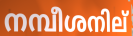
നമ്പീശനില്